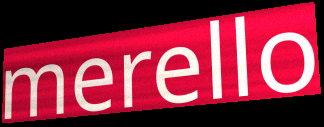
merello